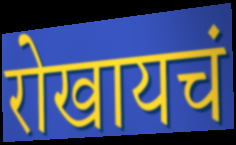
रोखायचं